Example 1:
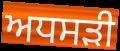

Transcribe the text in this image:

ਅਧਸੜੀ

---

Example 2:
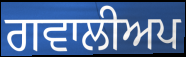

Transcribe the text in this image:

ਗਵਾਲੀਅਪ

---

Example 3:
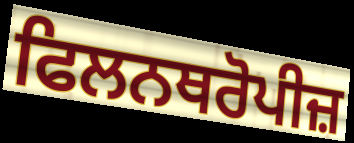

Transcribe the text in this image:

ਫਿਲਨਥਰੋਪੀਜ਼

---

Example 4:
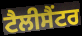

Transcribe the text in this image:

ਟੈਲੀਸੈਂਟਰ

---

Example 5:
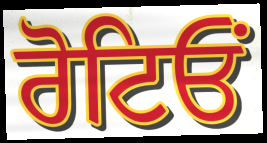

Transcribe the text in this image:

ਰੋਟਿਓਂ